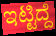
ಇಟ್ಟಿದ್ದೆ